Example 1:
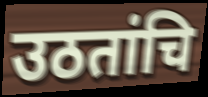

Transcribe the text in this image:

उठतांचि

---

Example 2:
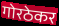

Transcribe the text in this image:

गोरठेकर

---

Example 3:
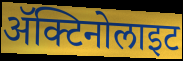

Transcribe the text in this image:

ॲक्टिनोलाइट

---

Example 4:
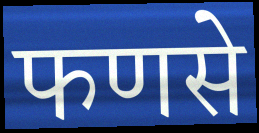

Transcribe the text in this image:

फणसे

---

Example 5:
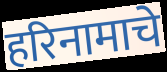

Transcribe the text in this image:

हरिनामाचे